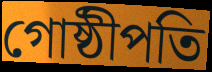
গোষ্ঠীপতি